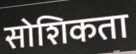
सोशिकता